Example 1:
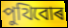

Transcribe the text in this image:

পুথিবোৰ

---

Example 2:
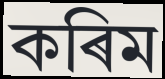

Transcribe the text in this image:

কৰিম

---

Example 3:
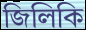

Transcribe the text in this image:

জিলিকি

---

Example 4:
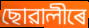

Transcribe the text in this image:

ছোৱালীৰে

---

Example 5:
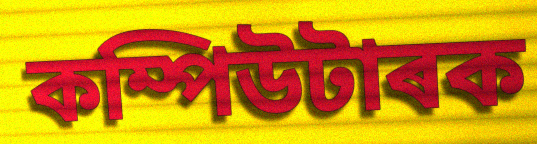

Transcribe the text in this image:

কম্পিউটাৰক